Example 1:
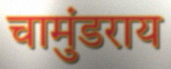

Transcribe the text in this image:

चामुंडराय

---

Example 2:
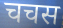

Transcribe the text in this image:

चचस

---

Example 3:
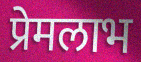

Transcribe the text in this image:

प्रेमलाभ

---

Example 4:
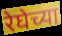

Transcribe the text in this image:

रेघेच्या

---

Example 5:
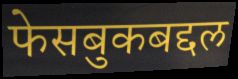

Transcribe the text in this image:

फेसबुकबद्दल